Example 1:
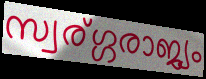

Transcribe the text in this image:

സ്വര്ഗ്ഗരാജ്യം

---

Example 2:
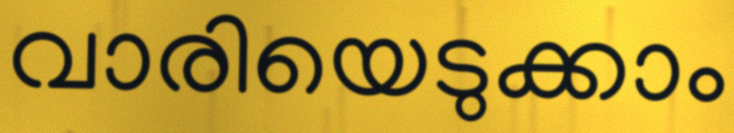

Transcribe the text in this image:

വാരിയെടുക്കാം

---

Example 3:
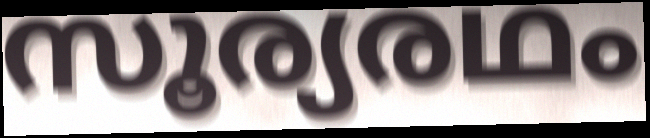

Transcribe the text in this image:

സൂര്യരഥം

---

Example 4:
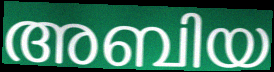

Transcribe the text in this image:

അബിയ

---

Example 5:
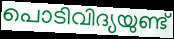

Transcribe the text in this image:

പൊടിവിദ്യയുണ്ട്